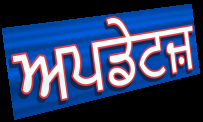
ਅਪਡੇਟਜ਼